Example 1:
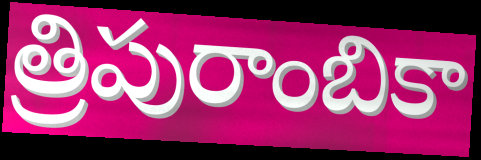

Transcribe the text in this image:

త్రిపురాంబికా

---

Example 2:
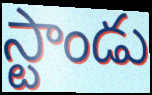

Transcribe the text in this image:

స్టాండు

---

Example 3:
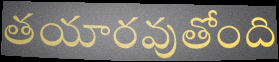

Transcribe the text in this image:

తయారవుతోంది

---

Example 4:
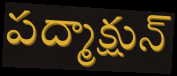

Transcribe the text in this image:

పద్మాక్షున్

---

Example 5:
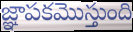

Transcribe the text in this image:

జ్ఞాపకమొస్తుంది